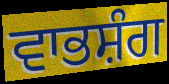
ਵਾਭਸ਼ੰਗ